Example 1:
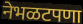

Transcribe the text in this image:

नेभळटपणा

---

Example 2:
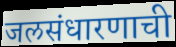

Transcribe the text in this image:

जलसंधारणाची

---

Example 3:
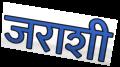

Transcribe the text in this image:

जराशी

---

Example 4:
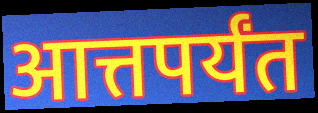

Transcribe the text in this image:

आत्तपर्यंत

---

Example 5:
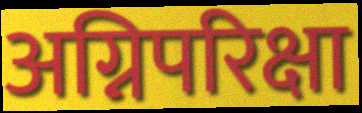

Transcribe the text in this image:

अग्निपरिक्षा